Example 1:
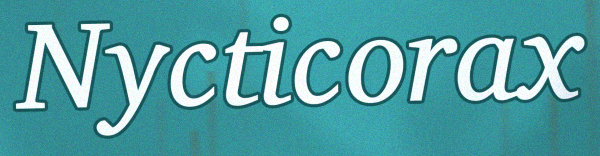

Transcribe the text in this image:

Nycticorax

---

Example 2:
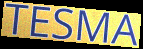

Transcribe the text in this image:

TESMA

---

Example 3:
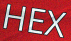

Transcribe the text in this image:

HEX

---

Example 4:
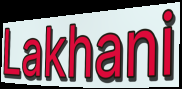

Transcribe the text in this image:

Lakhani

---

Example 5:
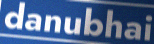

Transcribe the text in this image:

danubhai